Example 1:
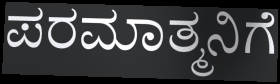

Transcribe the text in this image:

ಪರಮಾತ್ಮನಿಗೆ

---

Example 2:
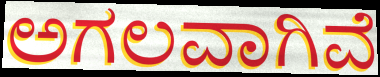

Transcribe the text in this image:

ಅಗಲವಾಗಿವೆ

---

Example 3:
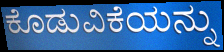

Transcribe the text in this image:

ಕೊಡುವಿಕೆಯನ್ನು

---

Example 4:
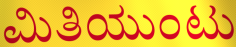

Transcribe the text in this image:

ಮಿತಿಯುಂಟು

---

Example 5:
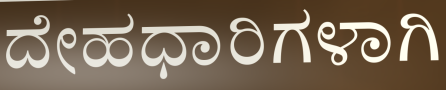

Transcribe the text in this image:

ದೇಹಧಾರಿಗಳಾಗಿ